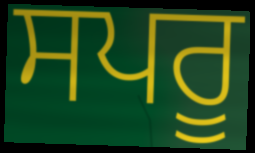
ਸਪਰੂ